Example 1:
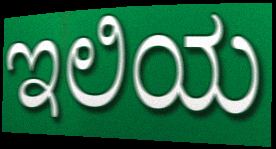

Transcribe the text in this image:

ಇಲಿಯ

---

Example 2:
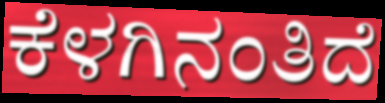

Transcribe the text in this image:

ಕೆಳಗಿನಂತಿದೆ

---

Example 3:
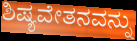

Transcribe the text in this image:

ಶಿಷ್ಯವೇತನವನ್ನು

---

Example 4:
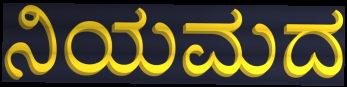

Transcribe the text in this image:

ನಿಯಮದ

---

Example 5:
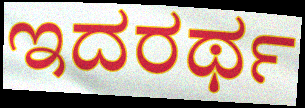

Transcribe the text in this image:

ಇದರರ್ಥ